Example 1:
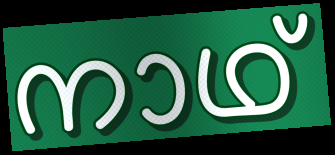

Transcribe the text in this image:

നാഥ്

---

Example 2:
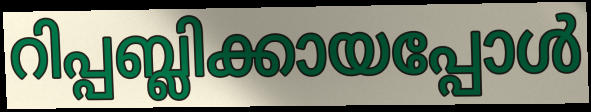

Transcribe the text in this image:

റിപ്പബ്ലിക്കായപ്പോൾ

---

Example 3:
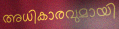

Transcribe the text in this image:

അധികാരവുമായി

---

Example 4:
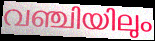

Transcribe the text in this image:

വഞ്ചിയിലും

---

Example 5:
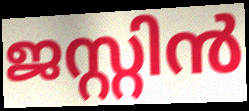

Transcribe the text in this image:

ജസ്റ്റിൻ